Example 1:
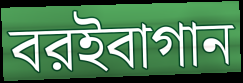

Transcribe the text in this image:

বরইবাগান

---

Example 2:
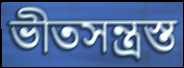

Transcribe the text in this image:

ভীতসন্ত্রস্ত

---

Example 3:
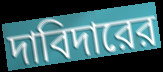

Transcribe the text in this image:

দাবিদারের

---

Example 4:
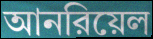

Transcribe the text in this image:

আনরিয়েল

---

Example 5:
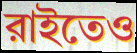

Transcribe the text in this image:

রাইতেও